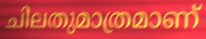
ചിലതുമാത്രമാണ്